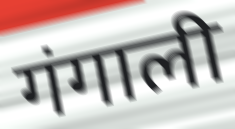
गंगाली